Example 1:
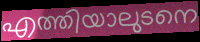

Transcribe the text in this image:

എത്തിയാലുടനെ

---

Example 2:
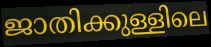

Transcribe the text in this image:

ജാതിക്കുള്ളിലെ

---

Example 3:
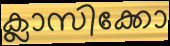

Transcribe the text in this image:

ക്ലാസിക്കോ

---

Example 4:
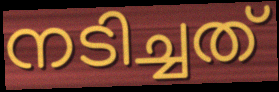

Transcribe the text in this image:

നടിച്ചത്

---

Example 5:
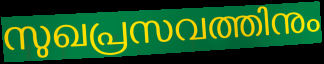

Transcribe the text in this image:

സുഖപ്രസവത്തിനും